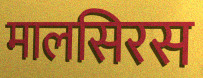
मालसिरस